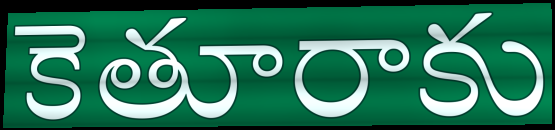
కెతూరాకు